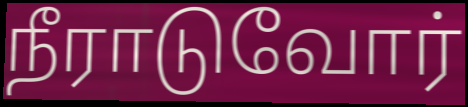
நீராடுவோர்